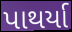
પાથર્યા